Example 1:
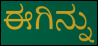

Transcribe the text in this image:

ಈಗಿನ್ನು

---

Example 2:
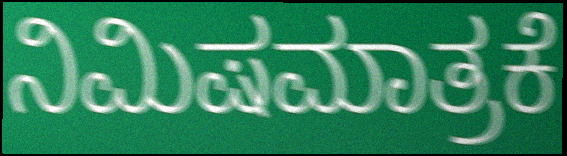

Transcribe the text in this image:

ನಿಮಿಷಮಾತ್ರಕೆ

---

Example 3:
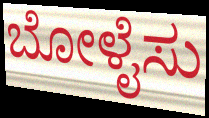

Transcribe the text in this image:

ಬೋಳೈಸು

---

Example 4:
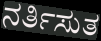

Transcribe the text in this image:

ನರ್ತಿಸುತ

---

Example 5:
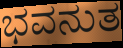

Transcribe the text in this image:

ಭವನುತ